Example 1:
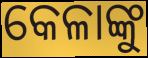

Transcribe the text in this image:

କେଳାଙ୍କୁ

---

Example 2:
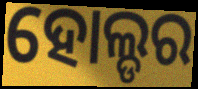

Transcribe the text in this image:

ହୋଲ୍ଡର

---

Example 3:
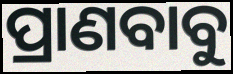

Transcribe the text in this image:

ପ୍ରାଣବାବୁ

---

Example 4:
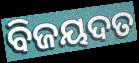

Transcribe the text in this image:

ବିଜୟଦତ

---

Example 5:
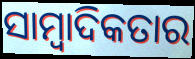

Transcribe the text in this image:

ସାମ୍ୱାଦିକତାର